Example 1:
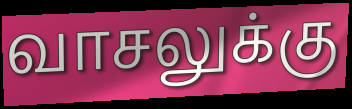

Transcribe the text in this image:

வாசலுக்கு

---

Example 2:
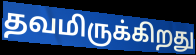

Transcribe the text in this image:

தவமிருக்கிறது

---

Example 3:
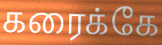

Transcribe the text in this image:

கரைக்கே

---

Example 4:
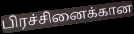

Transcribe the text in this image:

பிரச்சினைக்கான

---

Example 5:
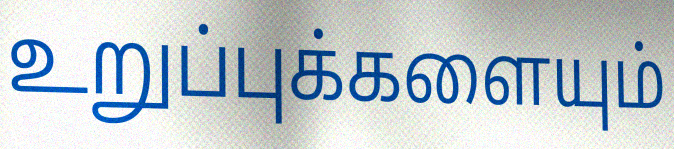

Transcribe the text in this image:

உறுப்புக்களையும்